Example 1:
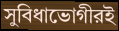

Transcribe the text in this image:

সুবিধাভোগীরই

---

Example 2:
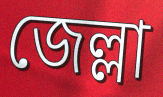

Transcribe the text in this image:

জেল্লা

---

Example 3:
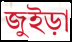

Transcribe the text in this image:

জুইড়া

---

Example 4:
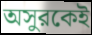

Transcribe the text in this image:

অসুরকেই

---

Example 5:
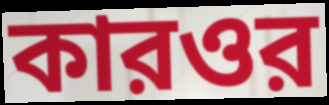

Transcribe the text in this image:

কারওর